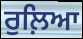
ਰੁਲ਼ਿਆ